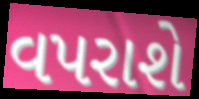
વપરાશે